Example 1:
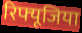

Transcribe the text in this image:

रिफ्यूजिया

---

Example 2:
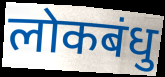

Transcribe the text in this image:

लोकबंधु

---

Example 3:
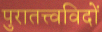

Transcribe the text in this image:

पुरातत्त्वविदों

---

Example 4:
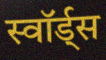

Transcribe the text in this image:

स्‍वॉर्ड्स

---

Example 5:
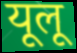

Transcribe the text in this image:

यूलू